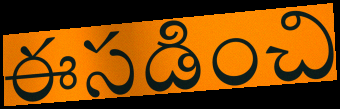
ఈసడించి